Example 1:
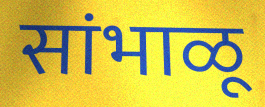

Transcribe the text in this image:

सांभाळू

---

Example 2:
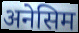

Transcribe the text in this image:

अनेसिम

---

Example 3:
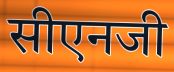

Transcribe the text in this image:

सीएनजी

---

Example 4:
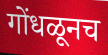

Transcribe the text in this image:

गोंधळूनच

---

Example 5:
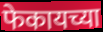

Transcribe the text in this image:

फेकायच्या